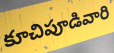
కూచిపూడివారి